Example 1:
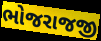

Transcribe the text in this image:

ભોજરાજજી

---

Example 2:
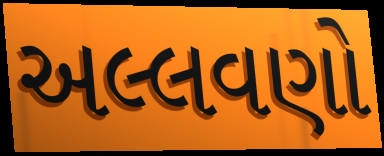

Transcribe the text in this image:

અલ્લવણો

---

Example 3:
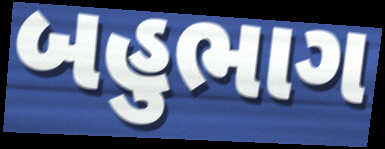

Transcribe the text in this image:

બહુભાગ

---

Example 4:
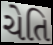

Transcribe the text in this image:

ચેતિ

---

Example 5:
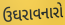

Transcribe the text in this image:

ઉઘરાવનારો